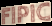
FIPIC